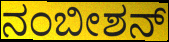
ನಂಬೀಶನ್